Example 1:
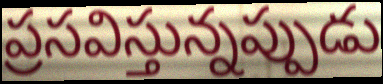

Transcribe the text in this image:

ప్రసవిస్తున్నప్పుడు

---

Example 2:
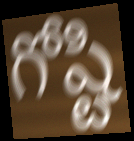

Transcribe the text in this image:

గోష్టి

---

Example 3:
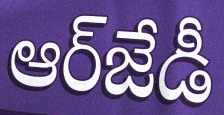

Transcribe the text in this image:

ఆర్‌జేడీ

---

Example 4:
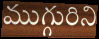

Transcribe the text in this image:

ముగ్గురిని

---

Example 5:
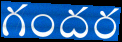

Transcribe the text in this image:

గందర